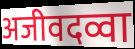
अजीवदव्वा